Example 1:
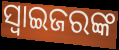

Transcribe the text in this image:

ସ୍ଵାଇଜରଙ୍କ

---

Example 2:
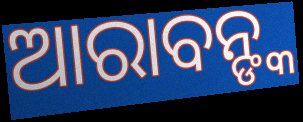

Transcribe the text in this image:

ଆରାବନ୍ଙ୍କ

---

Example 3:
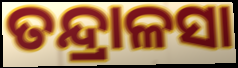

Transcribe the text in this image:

ତନ୍ଦ୍ରାଳସା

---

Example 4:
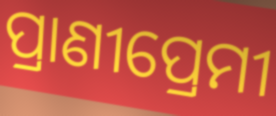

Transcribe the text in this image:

ପ୍ରାଣୀପ୍ରେମୀ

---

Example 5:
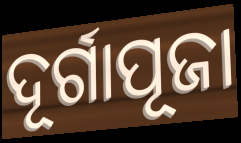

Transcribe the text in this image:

ଦୂର୍ଗାପୂଜା